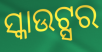
ସ୍କାଉଟ୍ସର